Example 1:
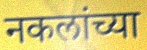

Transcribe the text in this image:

नकलांच्या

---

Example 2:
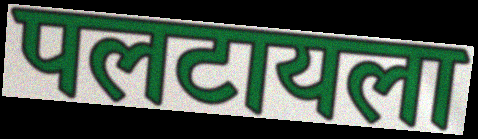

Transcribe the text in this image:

पलटायला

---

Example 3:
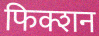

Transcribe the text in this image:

फिक्शन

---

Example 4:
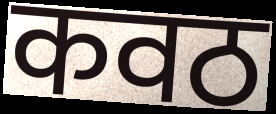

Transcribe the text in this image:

कवठ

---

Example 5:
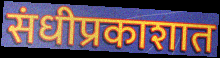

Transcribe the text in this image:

संधीप्रकाशात